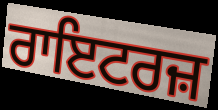
ਰਾਇਟਰਜ਼